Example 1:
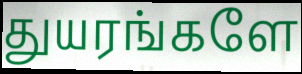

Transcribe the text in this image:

துயரங்களே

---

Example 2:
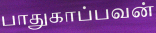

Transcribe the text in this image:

பாதுகாப்பவன்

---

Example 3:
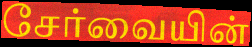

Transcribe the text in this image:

சேர்வையின்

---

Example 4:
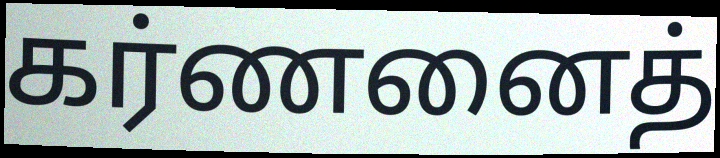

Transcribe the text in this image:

கர்ணனைத்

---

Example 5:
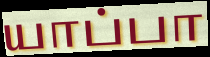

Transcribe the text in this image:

யாப்பா